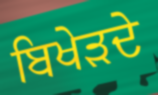
ਬਿਖੇੜਦੇ